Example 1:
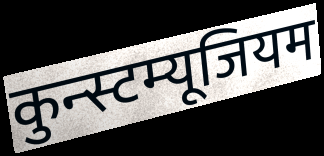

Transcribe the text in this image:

कुन्स्टम्यूजियम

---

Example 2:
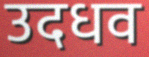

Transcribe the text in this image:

उदधव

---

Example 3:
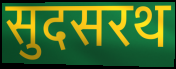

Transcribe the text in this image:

सुदसरथ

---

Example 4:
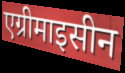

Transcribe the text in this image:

एग्रीमाइसीन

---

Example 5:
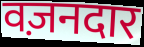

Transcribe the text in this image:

वज़नदार